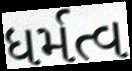
ધર્મત્વ